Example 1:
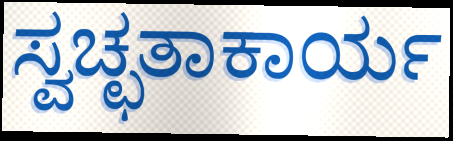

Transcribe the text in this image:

ಸ್ವಚ್ಛತಾಕಾರ್ಯ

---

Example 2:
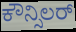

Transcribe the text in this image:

ಕೌನ್ಸಿಲರ್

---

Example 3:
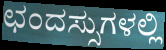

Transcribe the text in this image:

ಛಂದಸ್ಸುಗಳಲ್ಲಿ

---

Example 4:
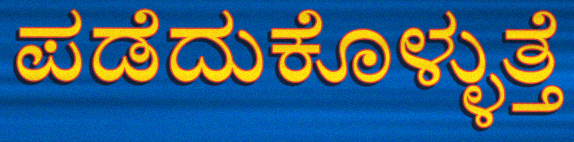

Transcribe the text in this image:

ಪಡೆದುಕೊಳ್ಳುತ್ತೆ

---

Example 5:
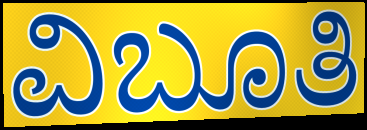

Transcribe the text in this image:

ವಿಬೂತಿ